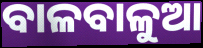
ବାଳବାଳୁଆ